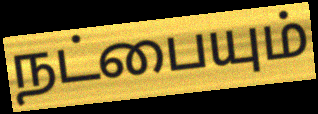
நட்பையும்